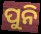
ପୁନି